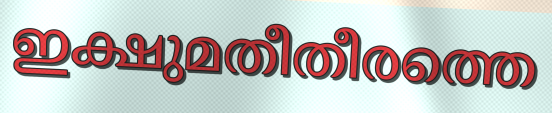
ഇക്ഷുമതീതീരത്തെ